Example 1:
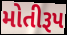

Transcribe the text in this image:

મોતીરૂપ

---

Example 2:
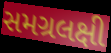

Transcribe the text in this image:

સમગ્રલક્ષી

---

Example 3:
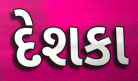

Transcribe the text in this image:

દેશકા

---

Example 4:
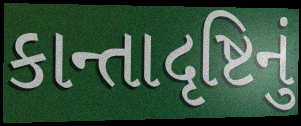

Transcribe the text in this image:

કાન્તાદૃષ્ટિનું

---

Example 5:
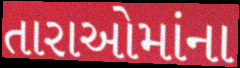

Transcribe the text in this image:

તારાઓમાંના